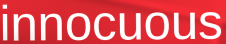
innocuous